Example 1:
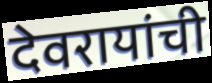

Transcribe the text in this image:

देवरायांची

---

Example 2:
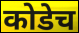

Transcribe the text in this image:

कोडेच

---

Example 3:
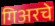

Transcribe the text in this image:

गिअरचे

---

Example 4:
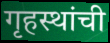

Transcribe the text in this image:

गृहस्थांची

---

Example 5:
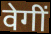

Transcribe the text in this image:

वेगीं